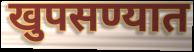
खुपसण्यात